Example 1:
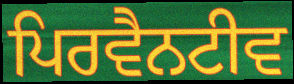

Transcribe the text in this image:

ਪਿਰਵੈਨਟੀਵ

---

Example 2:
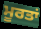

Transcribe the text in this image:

ਮੂਰਤਾਂ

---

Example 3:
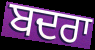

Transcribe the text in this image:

ਬਦਰਾ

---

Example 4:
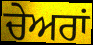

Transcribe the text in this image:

ਚੇਅਰਾਂ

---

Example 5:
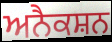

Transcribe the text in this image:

ਅਨੈਕਸ਼ਨ